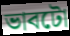
ভাবটো